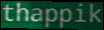
thappik